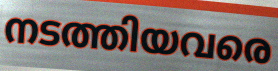
നടത്തിയവരെ